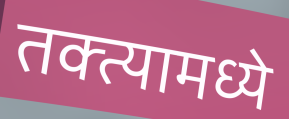
तक्‍त्यामध्ये